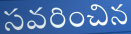
సవరించిన